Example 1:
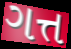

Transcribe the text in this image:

ગત્ત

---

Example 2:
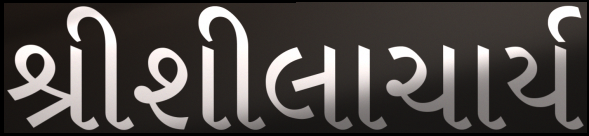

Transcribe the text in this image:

શ્રીશીલાચાર્ય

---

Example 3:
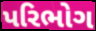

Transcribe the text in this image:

પરિભોગ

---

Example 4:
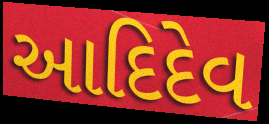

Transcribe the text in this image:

આદિદેવ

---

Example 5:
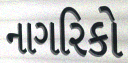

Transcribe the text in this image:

નાગરિકો